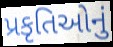
પ્રકૃતિઓનું